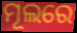
ମୂଲରେ